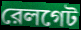
রেলগেট